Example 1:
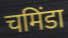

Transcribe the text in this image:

चमिंडा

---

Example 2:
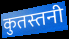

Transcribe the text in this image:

कुतस्तनी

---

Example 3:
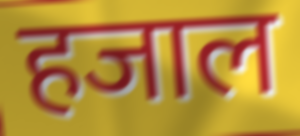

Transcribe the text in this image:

हजाल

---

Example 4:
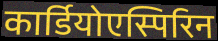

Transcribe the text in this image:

कार्डियोएस्पिरिन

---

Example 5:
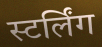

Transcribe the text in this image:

स्‍टर्लिंग